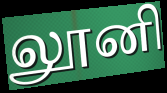
லூனி